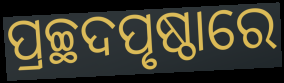
ପ୍ରଚ୍ଛଦପୃଷ୍ଠାରେ